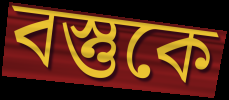
বস্তুকে